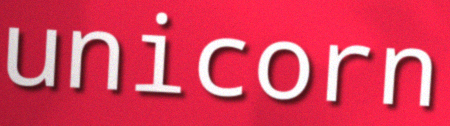
unicorn